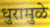
धुरामुळे